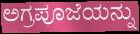
ಅಗ್ರಪೂಜೆಯನ್ನು